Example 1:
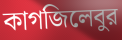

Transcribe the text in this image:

কাগজিলেবুর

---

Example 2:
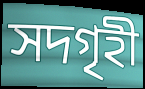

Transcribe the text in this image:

সদগৃহী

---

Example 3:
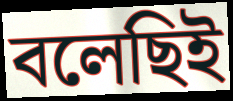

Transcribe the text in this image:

বলেছিই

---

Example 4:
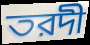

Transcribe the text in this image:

তরদী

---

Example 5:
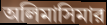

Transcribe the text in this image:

অলিমাসিমার